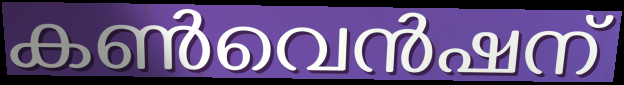
കൺവെൻഷന്